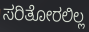
ಸರಿತೋರಲಿಲ್ಲ